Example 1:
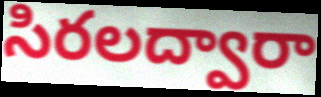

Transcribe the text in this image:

సిరలద్వారా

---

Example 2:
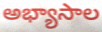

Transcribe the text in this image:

అభ్యాసాల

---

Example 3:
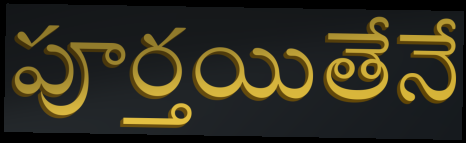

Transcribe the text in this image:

పూర్తయితేనే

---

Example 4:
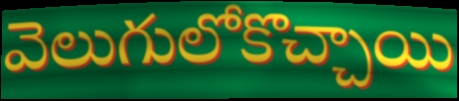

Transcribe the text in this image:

వెలుగులోకొచ్చాయి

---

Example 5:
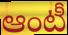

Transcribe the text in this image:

ఆంటీ